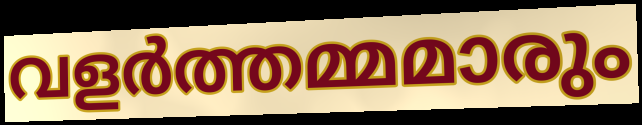
വളർത്തമ്മമാരും